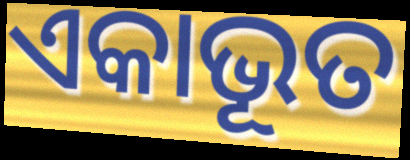
ଏକାଭୂତ